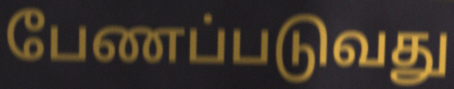
பேணப்படுவது